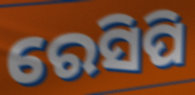
ରେସିପି